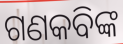
ଗଣକବିଙ୍କ